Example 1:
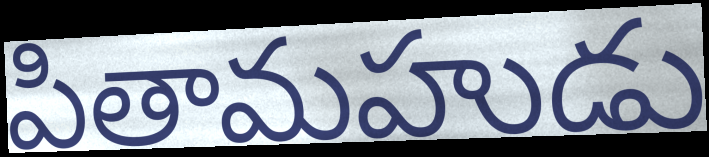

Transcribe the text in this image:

పితామహుడు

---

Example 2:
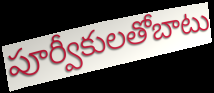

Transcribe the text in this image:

పూర్వీకులతోబాటు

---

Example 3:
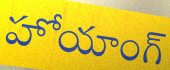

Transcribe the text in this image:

హోయాంగ్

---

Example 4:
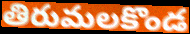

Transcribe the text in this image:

తిరుమలకొండ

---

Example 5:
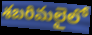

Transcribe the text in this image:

శబరిమలైలో